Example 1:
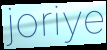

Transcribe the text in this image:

joriye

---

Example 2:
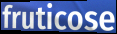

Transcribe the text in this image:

fruticose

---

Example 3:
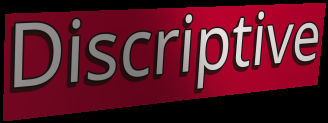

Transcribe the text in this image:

Discriptive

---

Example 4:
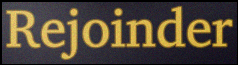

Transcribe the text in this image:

Rejoinder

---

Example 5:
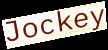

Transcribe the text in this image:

Jockey